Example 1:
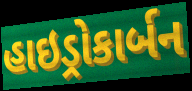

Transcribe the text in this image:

હાઇડ્રોકાર્બન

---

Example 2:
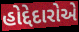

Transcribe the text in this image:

હોદ્દેદારોએ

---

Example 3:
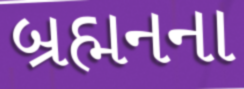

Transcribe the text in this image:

બ્રહ્મનના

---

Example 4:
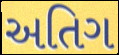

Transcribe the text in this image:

અતિગ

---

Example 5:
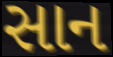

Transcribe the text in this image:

સાન